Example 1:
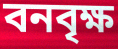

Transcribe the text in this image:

বনবৃক্ষ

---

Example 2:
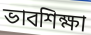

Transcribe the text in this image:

ভাবশিক্ষা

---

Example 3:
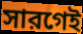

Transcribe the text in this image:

সারগেই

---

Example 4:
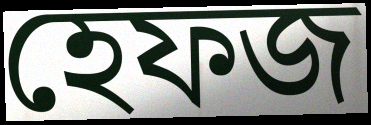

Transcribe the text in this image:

হেফজ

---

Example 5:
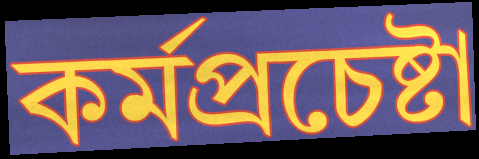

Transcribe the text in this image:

কর্মপ্রচেষ্টা